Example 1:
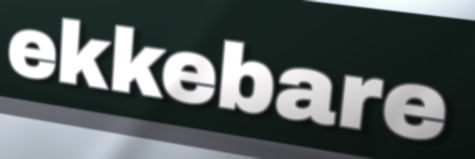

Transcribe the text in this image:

ekkebare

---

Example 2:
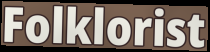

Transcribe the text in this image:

Folklorist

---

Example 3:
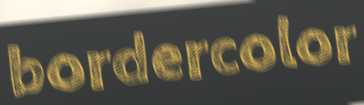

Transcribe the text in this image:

bordercolor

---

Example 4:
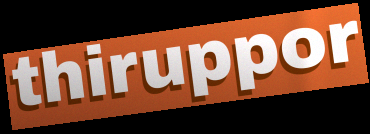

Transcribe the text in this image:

thiruppor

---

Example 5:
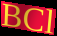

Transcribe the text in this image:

BCl